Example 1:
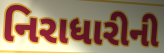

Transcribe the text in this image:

નિરાધારીની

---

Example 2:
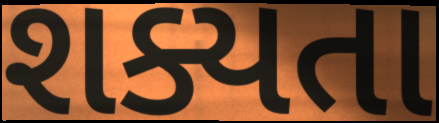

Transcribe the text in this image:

શક્યતા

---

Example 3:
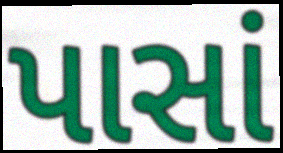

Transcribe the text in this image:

પાસાં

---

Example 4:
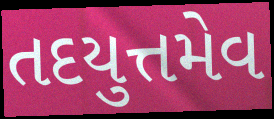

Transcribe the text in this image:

તદયુત્તમેવ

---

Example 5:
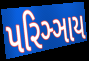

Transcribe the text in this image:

પરિઞ્ઞાય